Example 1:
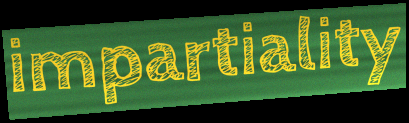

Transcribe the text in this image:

impartiality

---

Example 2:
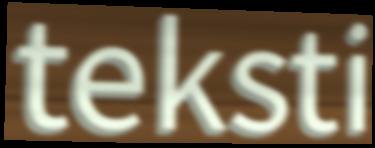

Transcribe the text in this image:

teksti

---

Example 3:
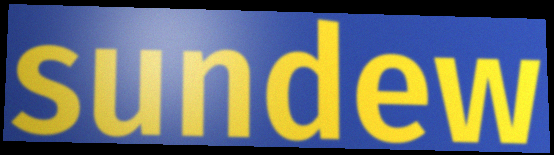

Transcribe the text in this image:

sundew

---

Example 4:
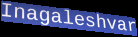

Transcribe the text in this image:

Inagaleshvar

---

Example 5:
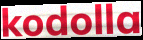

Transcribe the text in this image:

kodolla